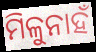
ମିଳୁନାହଁ